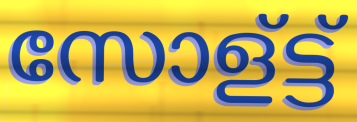
സോള്ട്ട്